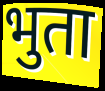
भुता